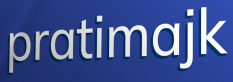
pratimajk